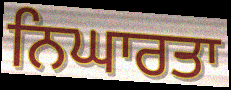
ਨਿਘਾਰਤਾ